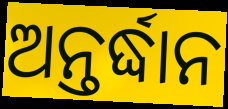
ଅନ୍ତର୍ଦ୍ଧାନ